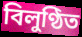
বিলুণ্ঠিত